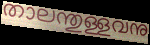
താലന്തുള്ളവനു